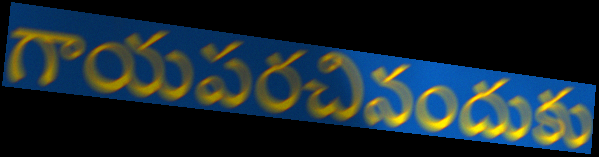
గాయపరచినందుకు